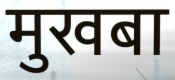
मुखबा